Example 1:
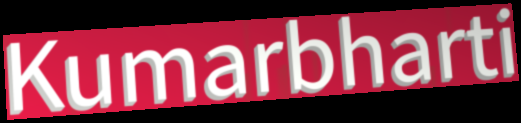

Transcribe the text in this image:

Kumarbharti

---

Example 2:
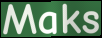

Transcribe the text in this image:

Maks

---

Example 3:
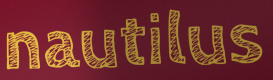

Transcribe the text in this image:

nautilus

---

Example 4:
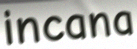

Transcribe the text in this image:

incana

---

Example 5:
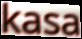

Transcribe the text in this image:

kasa